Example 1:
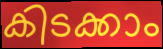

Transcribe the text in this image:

കിടക്കാം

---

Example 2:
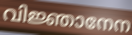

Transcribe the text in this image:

വിജ്ഞാനേന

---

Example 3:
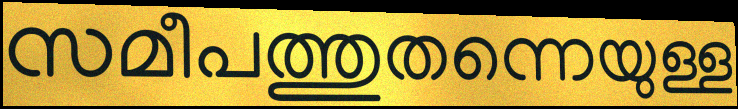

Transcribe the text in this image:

സമീപത്തുതന്നെയുള്ള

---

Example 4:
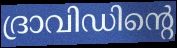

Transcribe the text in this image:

ദ്രാവിഡിന്റെ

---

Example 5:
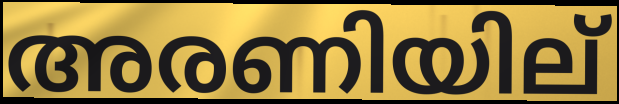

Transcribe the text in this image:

അരണിയില്